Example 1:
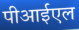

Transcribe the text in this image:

पीआईएल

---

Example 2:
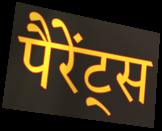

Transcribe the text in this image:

पैरेंट्स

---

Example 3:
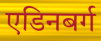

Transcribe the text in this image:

एडिनबर्ग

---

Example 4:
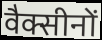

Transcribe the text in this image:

वैक्सीनों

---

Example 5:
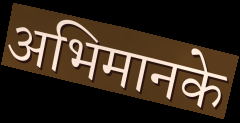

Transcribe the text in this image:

अभिमानके